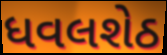
ધવલશેઠ